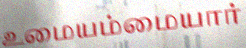
உமையம்மையார்